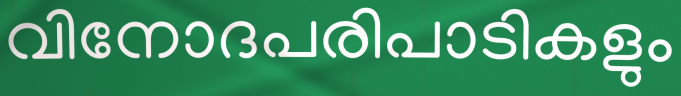
വിനോദപരിപാടികളും